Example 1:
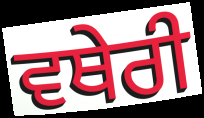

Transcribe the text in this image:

ਵਥੇਰੀ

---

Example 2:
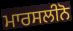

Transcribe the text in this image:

ਮਾਰਸਲੀਨੋ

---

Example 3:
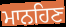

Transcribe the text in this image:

ਮਾਨਹਿਣ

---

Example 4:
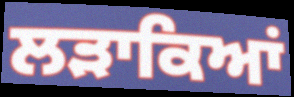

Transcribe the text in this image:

ਲੜਾਕਿਆਂ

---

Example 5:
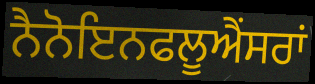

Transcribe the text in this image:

ਨੈਨੋਇਨਫਲੂਐਂਸਰਾਂ